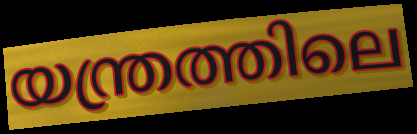
യന്ത്രത്തിലെ